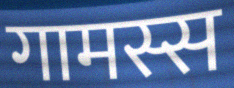
गामस्स